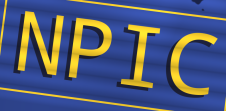
NPIC